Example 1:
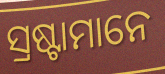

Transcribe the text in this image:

ସ୍ରଷ୍ଟାମାନେ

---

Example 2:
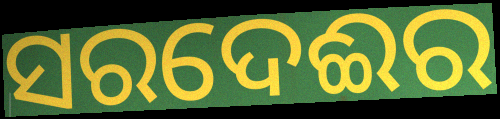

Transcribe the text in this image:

ସରଦେଈର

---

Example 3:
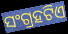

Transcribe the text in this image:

ସଂଗ୍ରହଟିଏ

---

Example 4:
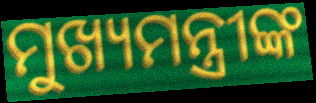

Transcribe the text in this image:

ମୁଖ୍ୟମନ୍ତ୍ରୀଙ୍କ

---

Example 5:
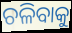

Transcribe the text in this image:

ଚଳିବାକୁ